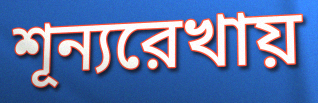
শূন্যরেখায়